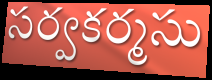
సర్వకర్మసు